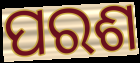
ପରଶ